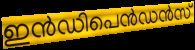
ഇൻഡിപെൻഡൻസ്